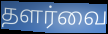
தளர்வை